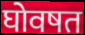
घोवषत